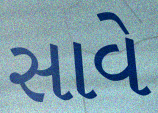
સાવે